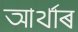
আৰ্থাৰ